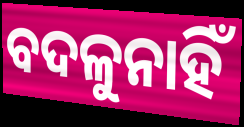
ବଦଳୁନାହିଁ